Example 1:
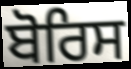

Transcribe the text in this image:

ਬੋਰਿਸ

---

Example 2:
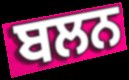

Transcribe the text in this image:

ਬਲਨ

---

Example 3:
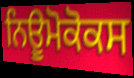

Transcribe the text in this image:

ਨਿਊਮੋਕੋਕਸ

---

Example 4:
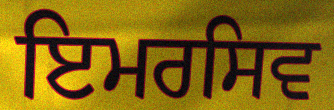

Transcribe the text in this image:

ਇਮਰਸਿਵ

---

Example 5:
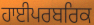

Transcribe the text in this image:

ਹਾਈਪਰਬਰਿਕ